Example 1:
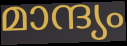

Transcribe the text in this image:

മാന്ദ്യം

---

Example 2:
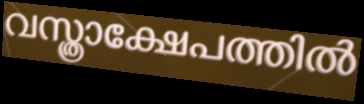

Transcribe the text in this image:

വസ്ത്രാക്ഷേപത്തിൽ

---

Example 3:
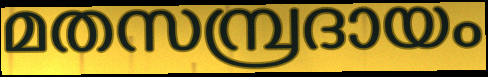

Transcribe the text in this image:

മതസമ്പ്രദായം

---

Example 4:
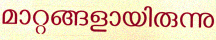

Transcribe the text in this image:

മാറ്റങ്ങളായിരുന്നു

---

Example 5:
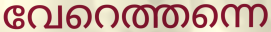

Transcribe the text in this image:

വേറെത്തന്നെ